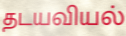
தடயவியல்